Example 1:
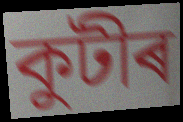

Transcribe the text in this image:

কুটীৰ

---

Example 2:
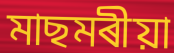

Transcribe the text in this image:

মাছমৰীয়া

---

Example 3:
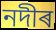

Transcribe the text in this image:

নদীৰ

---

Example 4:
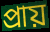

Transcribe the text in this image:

প্ৰায়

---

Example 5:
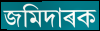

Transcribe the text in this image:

জমিদাৰক